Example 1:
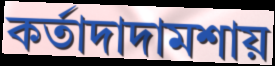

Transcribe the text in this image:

কর্তাদাদামশায়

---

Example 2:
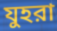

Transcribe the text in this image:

যুহরা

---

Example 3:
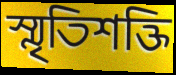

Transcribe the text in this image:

স্মৃতিশক্তি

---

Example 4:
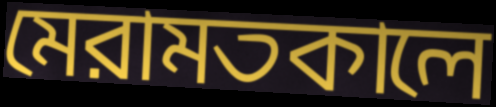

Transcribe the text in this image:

মেরামতকালে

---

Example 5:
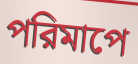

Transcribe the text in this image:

পরিমাপে